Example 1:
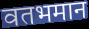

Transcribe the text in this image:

वतभमान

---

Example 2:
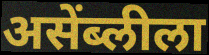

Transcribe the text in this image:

असेंब्लीला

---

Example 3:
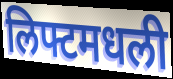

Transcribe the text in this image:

लिफ्टमधली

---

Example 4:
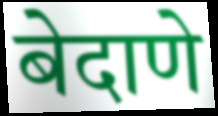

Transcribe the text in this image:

बेदाणे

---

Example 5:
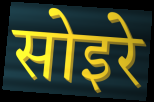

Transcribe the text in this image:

सोइरे